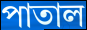
পাতাল